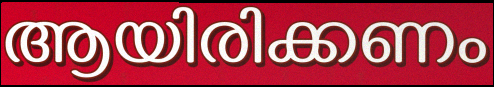
ആയിരിക്കണം